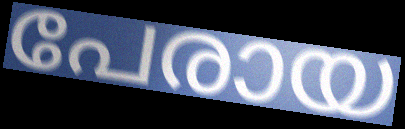
പേരായ